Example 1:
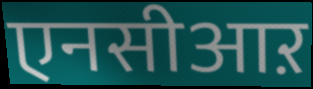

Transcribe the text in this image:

एनसीआऱ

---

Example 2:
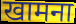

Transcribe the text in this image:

खामना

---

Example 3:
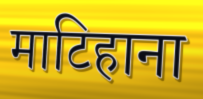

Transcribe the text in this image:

माटिहाना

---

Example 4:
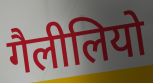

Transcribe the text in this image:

गैलीलियो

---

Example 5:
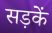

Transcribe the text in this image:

सड़कें